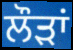
ਲੌੜਾਂ